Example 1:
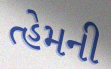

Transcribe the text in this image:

ત્હેમની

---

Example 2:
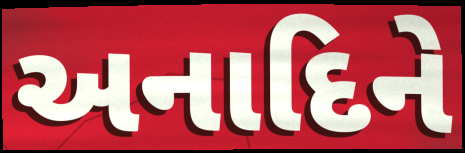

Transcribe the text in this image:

અનાદિને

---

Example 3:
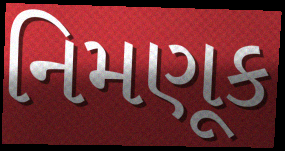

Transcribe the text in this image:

નિમણૂક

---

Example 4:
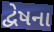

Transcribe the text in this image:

દ્વેષના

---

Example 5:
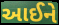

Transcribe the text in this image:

આઈને